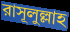
রাসূলুল্লাহ